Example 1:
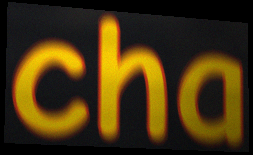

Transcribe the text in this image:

cha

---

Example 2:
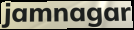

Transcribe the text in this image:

jamnagar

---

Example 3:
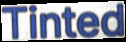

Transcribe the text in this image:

Tinted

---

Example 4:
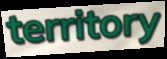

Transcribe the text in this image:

territory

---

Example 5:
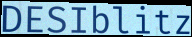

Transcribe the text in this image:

DESIblitz